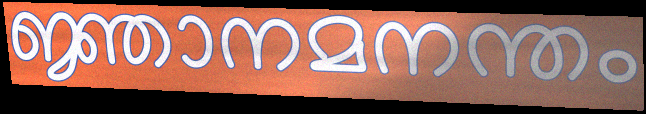
ജ്ഞാനമനന്തം